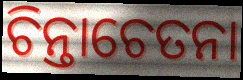
ଚିନ୍ତାଚେତନା